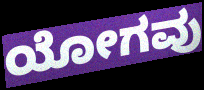
ಯೋಗವು